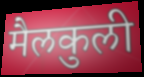
मैलकुली